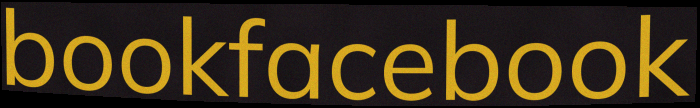
bookfacebook